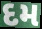
દમ